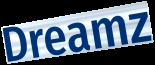
Dreamz